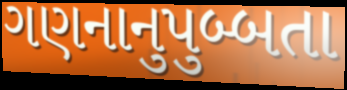
ગણનાનુપુબ્બતા